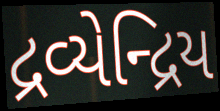
દ્રવ્યેન્દ્રિય